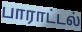
பாராட்டல்